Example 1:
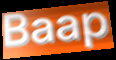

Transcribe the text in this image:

Baap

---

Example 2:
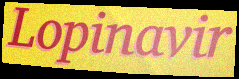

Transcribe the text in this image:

Lopinavir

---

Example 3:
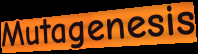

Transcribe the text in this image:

Mutagenesis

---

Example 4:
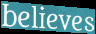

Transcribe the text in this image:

believes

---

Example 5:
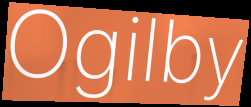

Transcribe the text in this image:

Ogilby